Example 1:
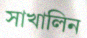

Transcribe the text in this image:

সাখালিন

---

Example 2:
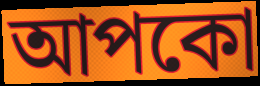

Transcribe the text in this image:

আপকো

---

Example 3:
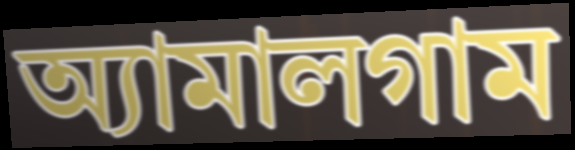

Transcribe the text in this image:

অ্যামালগাম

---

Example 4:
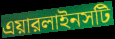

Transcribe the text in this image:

এয়ারলাইনসটি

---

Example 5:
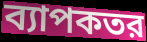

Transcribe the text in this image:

ব্যাপকতর